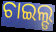
ଚାଇଲ୍ଡ